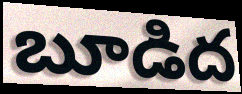
బూడిద